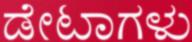
ಡೇಟಾಗಳು